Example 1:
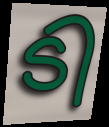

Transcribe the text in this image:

ടി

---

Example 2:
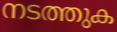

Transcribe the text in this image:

നടത്തുക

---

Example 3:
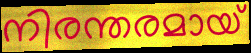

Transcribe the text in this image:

നിരന്തരമായ്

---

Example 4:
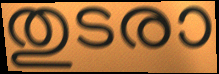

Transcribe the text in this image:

തുടരാ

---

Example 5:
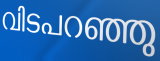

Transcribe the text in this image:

വിടപറഞ്ഞു